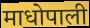
माधोपाली